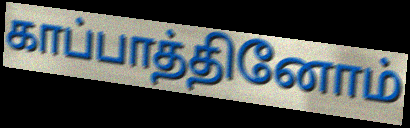
காப்பாத்தினோம்